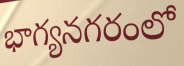
భాగ్యనగరంలో